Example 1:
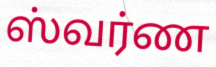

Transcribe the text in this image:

ஸ்வர்ண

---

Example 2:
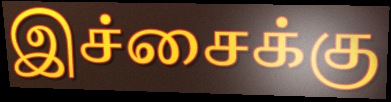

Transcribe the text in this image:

இச்சைக்கு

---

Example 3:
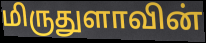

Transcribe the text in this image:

மிருதுளாவின்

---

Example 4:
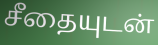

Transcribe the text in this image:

சீதையுடன்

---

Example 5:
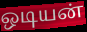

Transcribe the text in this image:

ஒடியன்